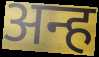
अन्ह